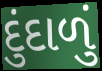
દુંદાળું